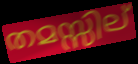
തമസ്സില്